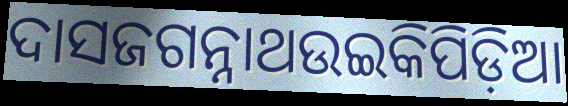
ଦାସଜଗନ୍ନାଥଉଇକିପିଡ଼ିଆ